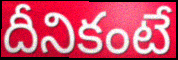
దీనికంటే